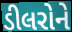
ડીલરોને